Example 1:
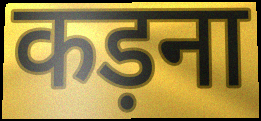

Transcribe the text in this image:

कड़ना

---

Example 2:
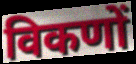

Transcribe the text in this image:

विकणों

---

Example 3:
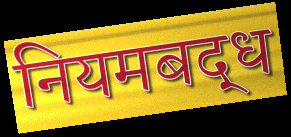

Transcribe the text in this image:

नियमबद्ध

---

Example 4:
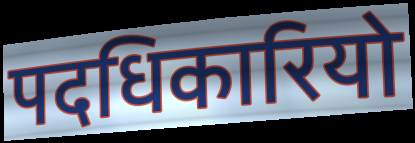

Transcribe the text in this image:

पदधिकारियो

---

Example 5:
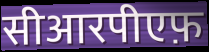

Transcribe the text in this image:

सीआरपीएफ़